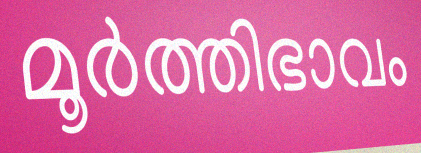
മൂർത്തിഭാവം